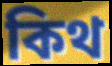
কিথ